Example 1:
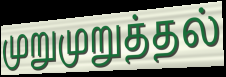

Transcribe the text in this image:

முறுமுறுத்தல்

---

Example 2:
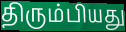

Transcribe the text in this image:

திரும்பியது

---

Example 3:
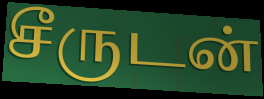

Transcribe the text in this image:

சீருடன்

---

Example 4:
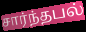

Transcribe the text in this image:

சார்ந்தபல்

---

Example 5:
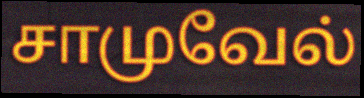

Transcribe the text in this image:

சாமுவேல்